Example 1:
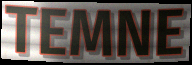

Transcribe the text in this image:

TEMNE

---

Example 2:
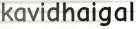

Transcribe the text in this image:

kavidhaigal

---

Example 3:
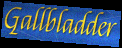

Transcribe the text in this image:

Gallbladder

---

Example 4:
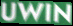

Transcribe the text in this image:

UWIN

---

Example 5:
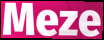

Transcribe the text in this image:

Meze